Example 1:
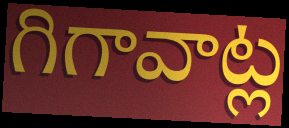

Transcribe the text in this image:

గిగావాట్ల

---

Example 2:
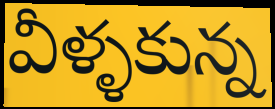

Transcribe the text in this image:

వీళ్ళకున్న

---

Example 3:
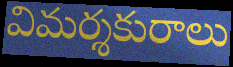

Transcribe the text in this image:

విమర్శకురాలు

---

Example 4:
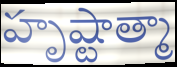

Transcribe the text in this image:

హృష్టాత్మా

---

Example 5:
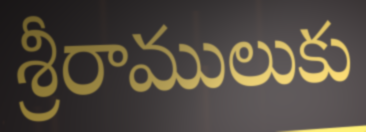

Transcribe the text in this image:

శ్రీరాములుకు